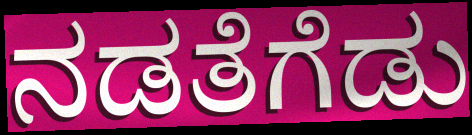
ನಡತೆಗೆಡು